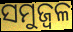
ସମୁଜ୍ୱଳ